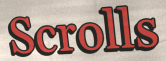
Scrolls